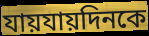
যায়যায়দিনকে